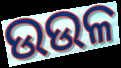
ଉଉଳ